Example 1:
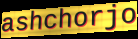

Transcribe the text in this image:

ashchorjo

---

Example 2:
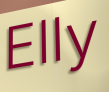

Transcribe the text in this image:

Elly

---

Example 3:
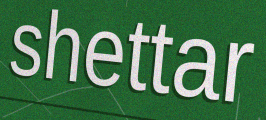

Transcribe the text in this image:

shettar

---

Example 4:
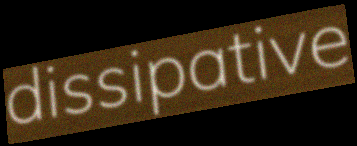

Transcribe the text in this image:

dissipative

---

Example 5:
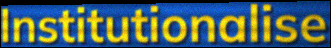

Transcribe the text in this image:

Institutionalise